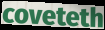
coveteth